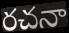
రచనా